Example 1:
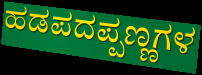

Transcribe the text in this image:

ಹಡಪದಪ್ಪಣ್ಣಗಳ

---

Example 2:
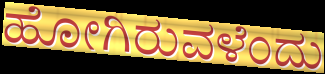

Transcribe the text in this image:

ಹೋಗಿರುವಳೆಂದು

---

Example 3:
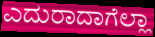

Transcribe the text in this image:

ಎದುರಾದಾಗೆಲ್ಲಾ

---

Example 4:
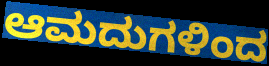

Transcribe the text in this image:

ಆಮದುಗಳಿಂದ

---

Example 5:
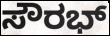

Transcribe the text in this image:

ಸೌರಭ್